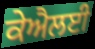
ਕੇਐਲਈ